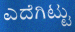
ಎದೆಗಿಟ್ಟು